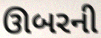
ઊબરની